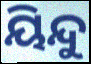
ୟିନ୍ଦୁ